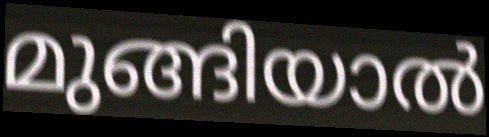
മുങ്ങിയാൽ